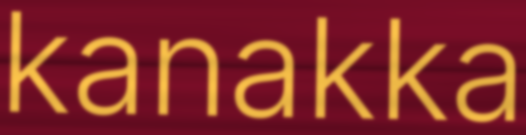
kanakka